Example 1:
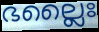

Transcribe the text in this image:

ഭല്ലൈഃ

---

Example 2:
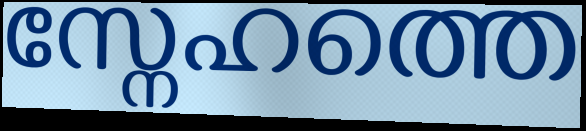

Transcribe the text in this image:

സ്നേഹത്തെ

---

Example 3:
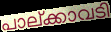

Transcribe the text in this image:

പാല്ക്കാവടി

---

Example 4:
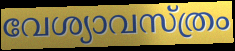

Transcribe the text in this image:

വേശ്യാവസ്ത്രം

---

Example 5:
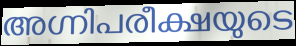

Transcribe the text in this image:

അഗ്നിപരീക്ഷയുടെ